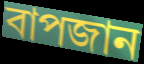
বাপজান